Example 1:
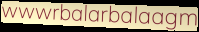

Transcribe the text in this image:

wwwrbalarbalaagm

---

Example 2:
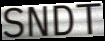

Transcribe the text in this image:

SNDT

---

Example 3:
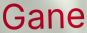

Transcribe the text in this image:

Gane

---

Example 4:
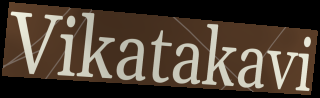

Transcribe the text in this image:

Vikatakavi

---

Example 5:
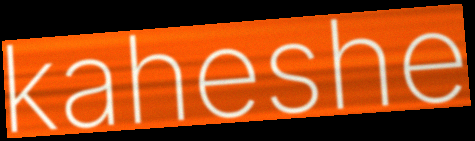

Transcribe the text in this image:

kaheshe